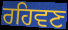
ਰਹਿਵਣ